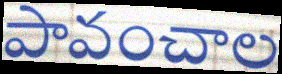
పావంచాల